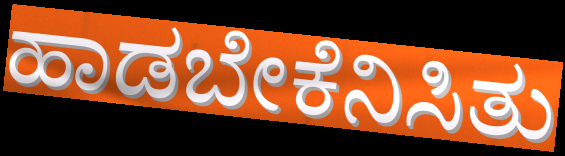
ಹಾಡಬೇಕೆನಿಸಿತು